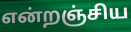
என்றஞ்சிய